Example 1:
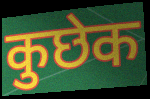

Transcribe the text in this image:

कुछेक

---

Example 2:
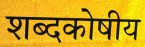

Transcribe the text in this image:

शब्दकोषीय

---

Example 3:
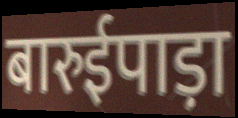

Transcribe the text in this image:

बारुईपाड़ा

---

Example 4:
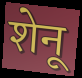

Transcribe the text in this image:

शेनू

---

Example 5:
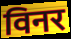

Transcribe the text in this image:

विनर